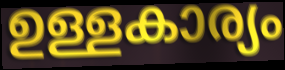
ഉള്ളകാര്യം